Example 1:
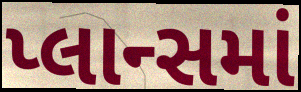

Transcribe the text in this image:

પ્લાન્સમાં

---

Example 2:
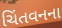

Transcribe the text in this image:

ચિંતવનના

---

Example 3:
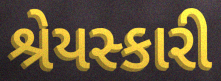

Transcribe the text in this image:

શ્રેયસ્કારી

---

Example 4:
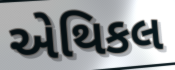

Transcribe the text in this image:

એથિકલ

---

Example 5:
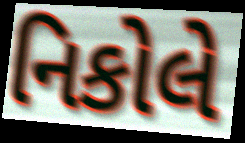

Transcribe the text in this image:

નિકોલે